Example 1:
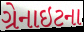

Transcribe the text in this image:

ગ્રેનાઇટના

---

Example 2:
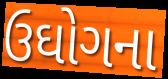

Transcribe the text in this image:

ઉઘોગના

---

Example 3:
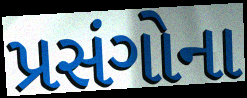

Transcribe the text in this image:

પ્રસંગોના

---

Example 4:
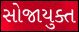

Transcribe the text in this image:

સોજાયુક્ત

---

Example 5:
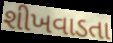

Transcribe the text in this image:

શીખવાડતા